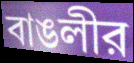
বাঙলীর